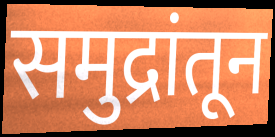
समुद्रांतून